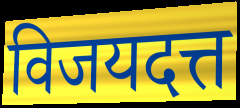
विजयदत्त